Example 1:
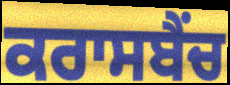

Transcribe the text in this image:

ਕਰਾਸਬੈਂਚ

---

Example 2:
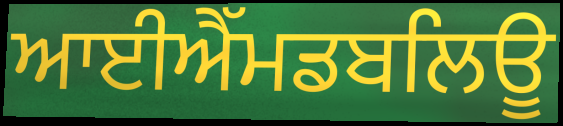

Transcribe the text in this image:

ਆਈਐੱਮਡਬਲਿਊ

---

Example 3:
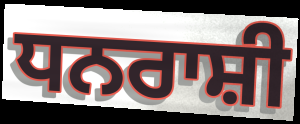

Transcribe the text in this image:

ਧਨਰਾਸ਼ੀ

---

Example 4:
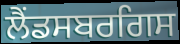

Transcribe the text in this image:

ਲੈਂਡਸਬਰਗਿਸ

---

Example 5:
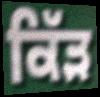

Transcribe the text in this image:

ਕਿੱੜ